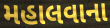
મહાલવાના